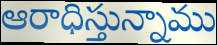
ఆరాధిస్తున్నాము